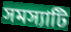
সমস্যাটি